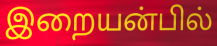
இறையன்பில்